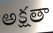
అక్షతా